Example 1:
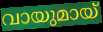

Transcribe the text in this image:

വായുമായ്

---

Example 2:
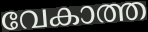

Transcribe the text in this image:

വേകാത്ത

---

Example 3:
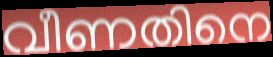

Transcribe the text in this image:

വീണതിനെ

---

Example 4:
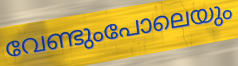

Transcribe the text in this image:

വേണ്ടുംപോലെയും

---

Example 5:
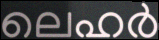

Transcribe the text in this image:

ലെഹർ